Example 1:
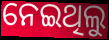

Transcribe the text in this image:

ନେଇଥିଲୁ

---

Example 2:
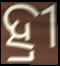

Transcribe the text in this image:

ହ୍ରୀ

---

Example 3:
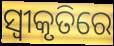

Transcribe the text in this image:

ସ୍ବୀକୃତିରେ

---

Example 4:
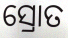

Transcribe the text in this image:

ସ୍ରୋତ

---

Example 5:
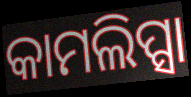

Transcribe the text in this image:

କାମଲିପ୍ସା